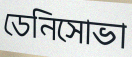
ডেনিসোভা